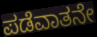
ಪಡೆವಾತನೇ